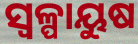
ସ୍ୱଳ୍ପାୟୁଷ